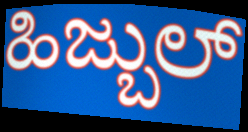
ಹಿಜ್ಬುಲ್